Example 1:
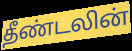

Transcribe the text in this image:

தீண்டலின்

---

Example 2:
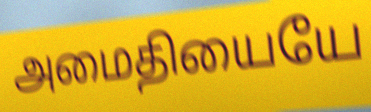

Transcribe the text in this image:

அமைதியையே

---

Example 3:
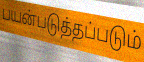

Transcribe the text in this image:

பயன்படுத்தப்படும்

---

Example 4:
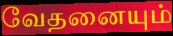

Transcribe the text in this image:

வேதனையும்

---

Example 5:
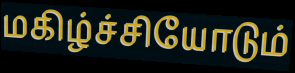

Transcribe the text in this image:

மகிழ்ச்சியோடும்